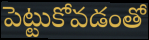
పెట్టుకోవడంతో